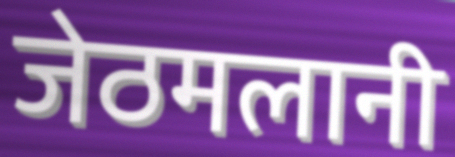
जेठमलानी